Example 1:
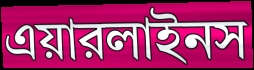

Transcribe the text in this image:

এয়ারলাইনস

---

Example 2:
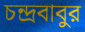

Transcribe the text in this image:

চন্দ্রবাবুর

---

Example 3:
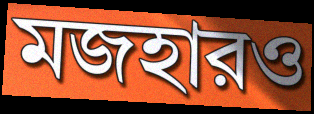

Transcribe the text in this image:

মজহারও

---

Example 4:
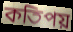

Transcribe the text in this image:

কতিপয়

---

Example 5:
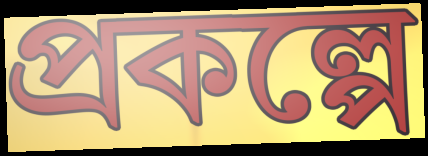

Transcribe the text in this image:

প্রকল্পে